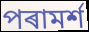
পৰামৰ্শ